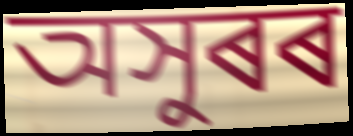
অসুৰৰ